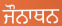
ਜੌਨਾਥਨ